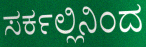
ಸರ್ಕಲ್ಲಿನಿಂದ